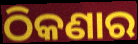
ଠିକଣାର